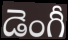
డెంగీ